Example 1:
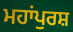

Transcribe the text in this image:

ਮਹਾਂਪੁਰਸ਼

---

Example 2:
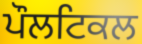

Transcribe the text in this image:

ਪੌਲਟਿਕਲ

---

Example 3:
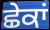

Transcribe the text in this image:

ਛੇਕਾਂ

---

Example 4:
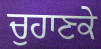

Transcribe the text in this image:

ਚੁਹਾਣਕੇ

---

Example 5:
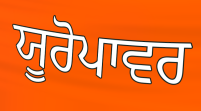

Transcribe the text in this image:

ਯੂਰੋਪਾਵਰ